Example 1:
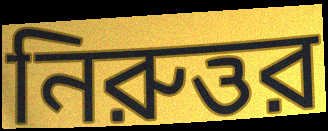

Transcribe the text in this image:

নিরুত্তর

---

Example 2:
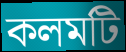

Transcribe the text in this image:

কলমটি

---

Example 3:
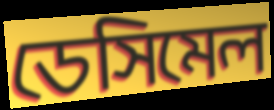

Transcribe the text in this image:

ডেসিমেল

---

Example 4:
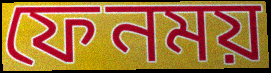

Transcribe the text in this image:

ফেনময়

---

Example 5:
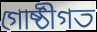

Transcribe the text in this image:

গোষ্ঠীগত